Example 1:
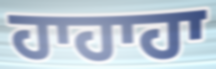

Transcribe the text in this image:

ਹਾਹਾਹਾ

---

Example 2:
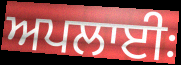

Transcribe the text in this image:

ਅਪਲਾਈਃ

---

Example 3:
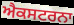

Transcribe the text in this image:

ਐਕਸਟਰਨਾ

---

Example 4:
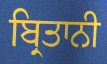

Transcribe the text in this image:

ਬ੍ਰਿਤਾਨੀ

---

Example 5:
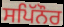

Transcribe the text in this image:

ਸਪਿੱਨੌਰ